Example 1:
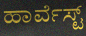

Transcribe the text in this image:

ಹಾರ್ವೆಸ್ಟ್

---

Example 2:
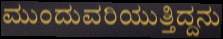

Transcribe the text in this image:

ಮುಂದುವರಿಯುತ್ತಿದ್ದನು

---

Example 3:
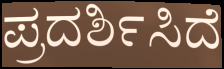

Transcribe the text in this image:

ಪ್ರದರ್ಶಿಸಿದೆ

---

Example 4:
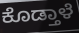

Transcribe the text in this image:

ಕೊಡ್ತಾಳೆ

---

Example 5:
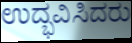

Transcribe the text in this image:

ಉದ್ಭವಿಸಿದರು